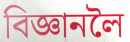
বিজ্ঞানলৈ